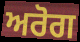
ਅਰੋਗ